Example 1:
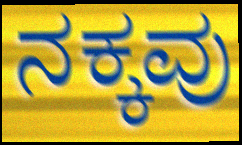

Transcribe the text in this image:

ನಕ್ಕವು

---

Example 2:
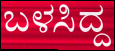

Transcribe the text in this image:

ಬಳಸಿದ್ದ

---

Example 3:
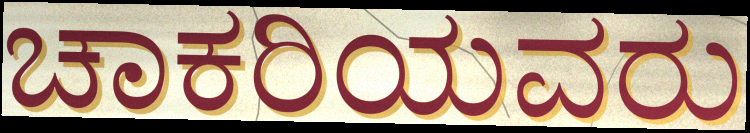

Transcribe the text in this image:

ಚಾಕರಿಯವರು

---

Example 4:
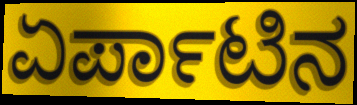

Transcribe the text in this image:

ಏರ್ಪಾಟಿನ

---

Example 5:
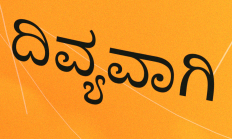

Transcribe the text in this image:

ದಿವ್ಯವಾಗಿ